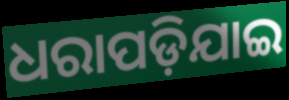
ଧରାପଡ଼ିଯାଇ